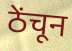
ठेंचून